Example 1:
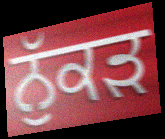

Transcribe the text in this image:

ਨੁੱਕਡ਼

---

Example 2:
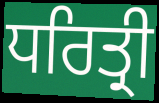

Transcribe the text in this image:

ਧਰਿਤ੍ਰੀ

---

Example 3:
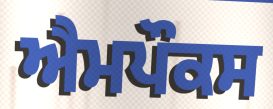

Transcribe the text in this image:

ਐਮਪੌਕਸ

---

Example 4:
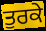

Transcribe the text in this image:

ਤੁਰਕੇ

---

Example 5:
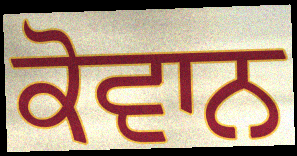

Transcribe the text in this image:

ਕੋਵਾਨ